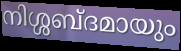
നിശ്ശബ്ദമായും